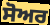
ਸੋਅਰ